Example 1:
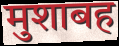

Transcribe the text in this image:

मुशाबह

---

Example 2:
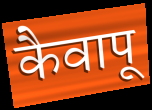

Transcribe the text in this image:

कैवापू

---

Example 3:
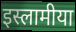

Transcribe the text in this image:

इस्लामीया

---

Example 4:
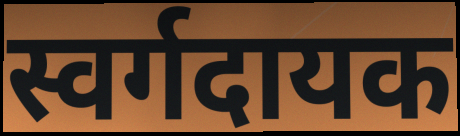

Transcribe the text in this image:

स्वर्गदायक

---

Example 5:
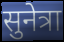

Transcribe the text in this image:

सुनेत्रा